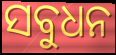
ସବୁଧନ